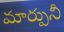
మార్పునీ